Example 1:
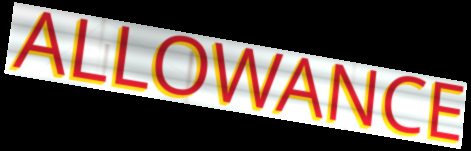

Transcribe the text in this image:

ALLOWANCE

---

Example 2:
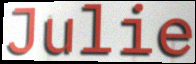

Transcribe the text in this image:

Julie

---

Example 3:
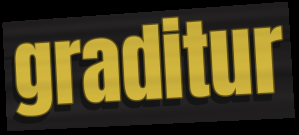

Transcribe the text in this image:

graditur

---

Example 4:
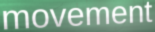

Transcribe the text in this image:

movement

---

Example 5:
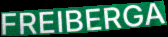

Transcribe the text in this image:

FREIBERGA